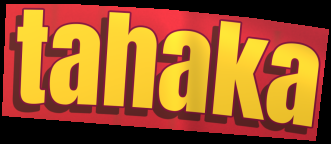
tahaka